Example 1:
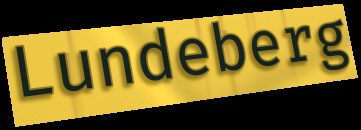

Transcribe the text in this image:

Lundeberg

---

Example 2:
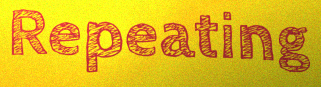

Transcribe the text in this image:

Repeating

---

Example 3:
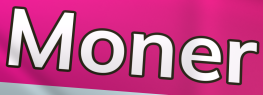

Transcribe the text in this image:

Moner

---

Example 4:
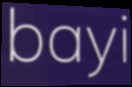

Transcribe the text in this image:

bayi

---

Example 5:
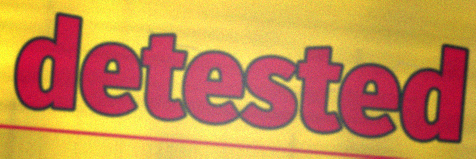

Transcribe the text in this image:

detested